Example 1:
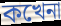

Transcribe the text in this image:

কখেনা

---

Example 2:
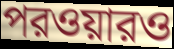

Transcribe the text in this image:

পরওয়ারও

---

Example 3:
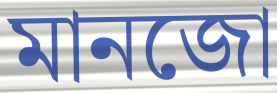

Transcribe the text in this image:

মানজো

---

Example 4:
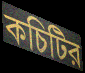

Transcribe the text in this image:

কচিটির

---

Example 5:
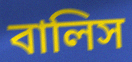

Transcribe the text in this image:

বালিস